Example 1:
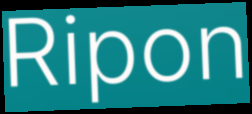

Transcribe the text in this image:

Ripon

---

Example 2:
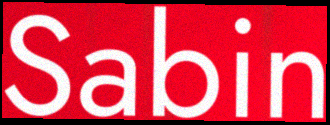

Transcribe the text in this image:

Sabin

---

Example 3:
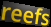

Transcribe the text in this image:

reefs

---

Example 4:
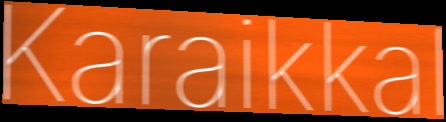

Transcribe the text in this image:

Karaikkal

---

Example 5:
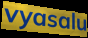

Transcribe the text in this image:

vyasalu